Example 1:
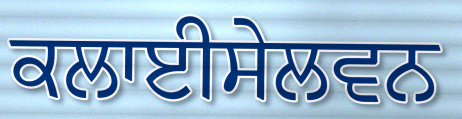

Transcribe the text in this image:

ਕਲਾਈਸੇਲਵਨ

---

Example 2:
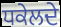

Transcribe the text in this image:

ਧਕੇਲਦੇ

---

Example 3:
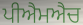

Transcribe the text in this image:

ਪੀਐਮਐਚ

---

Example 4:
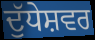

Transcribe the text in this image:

ਦੁੱਧੇਸ਼ਵਰ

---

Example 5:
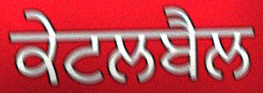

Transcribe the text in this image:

ਕੇਟਲਬੈਲ